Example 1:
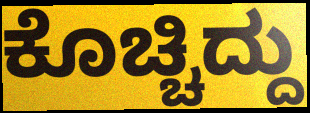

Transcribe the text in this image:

ಕೊಚ್ಚಿದ್ದು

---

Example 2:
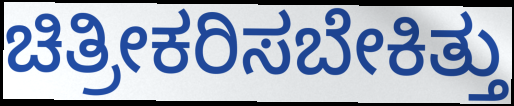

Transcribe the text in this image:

ಚಿತ್ರೀಕರಿಸಬೇಕಿತ್ತು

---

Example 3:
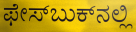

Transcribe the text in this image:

ಫೇಸ್‌ಬುಕ್‌ನಲ್ಲಿ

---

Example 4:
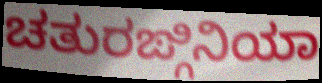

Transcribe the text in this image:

ಚತುರಙ್ಗಿನಿಯಾ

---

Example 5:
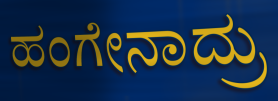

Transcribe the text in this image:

ಹಂಗೇನಾದ್ರು